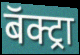
बॅक्ट्रा